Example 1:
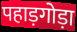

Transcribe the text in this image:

पहाड़गोड़ा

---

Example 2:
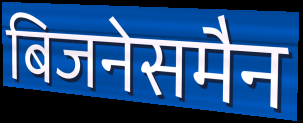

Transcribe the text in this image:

बिजनेसमैन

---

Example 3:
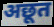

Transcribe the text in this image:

अछूत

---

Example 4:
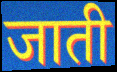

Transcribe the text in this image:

जाती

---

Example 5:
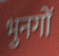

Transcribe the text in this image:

भुनगों